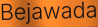
Bejawada